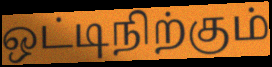
ஒட்டிநிற்கும்